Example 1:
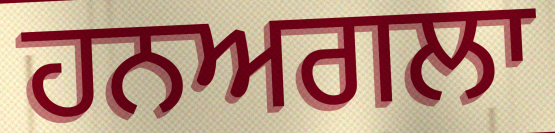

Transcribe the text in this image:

ਹਨਅਗਲਾ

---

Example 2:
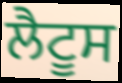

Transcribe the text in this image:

ਲੈਟੂਸ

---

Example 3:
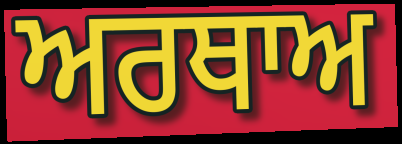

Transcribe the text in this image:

ਅਰਥਾਅ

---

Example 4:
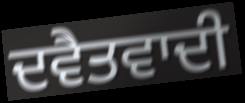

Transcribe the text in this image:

ਦਵੈਤਵਾਦੀ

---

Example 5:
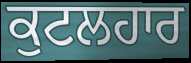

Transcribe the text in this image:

ਕੁਟਲਹਾਰ